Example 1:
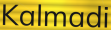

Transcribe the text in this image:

Kalmadi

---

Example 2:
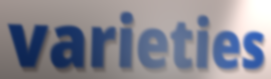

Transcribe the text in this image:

varieties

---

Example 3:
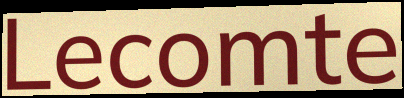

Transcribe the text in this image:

Lecomte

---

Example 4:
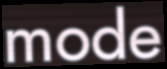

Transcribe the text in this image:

mode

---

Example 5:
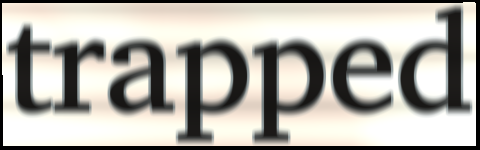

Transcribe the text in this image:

trapped